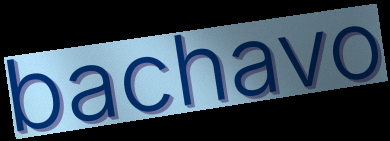
bachavo